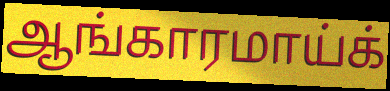
ஆங்காரமாய்க்